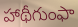
హాథీగుంఫా